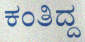
ಕಂತಿದ್ದ